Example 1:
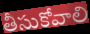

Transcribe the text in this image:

తీసుకోవాలి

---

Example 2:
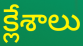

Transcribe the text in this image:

క్లేశాలు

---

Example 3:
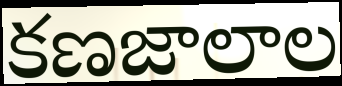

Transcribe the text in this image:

కణజాలాల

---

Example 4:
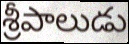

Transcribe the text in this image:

శ్రీపాలుడు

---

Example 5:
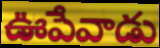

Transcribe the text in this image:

ఊపేవాడు